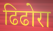
ढिढोरा